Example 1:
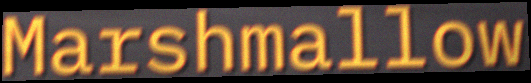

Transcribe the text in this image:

Marshmallow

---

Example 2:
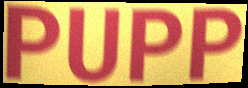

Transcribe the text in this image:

PUPP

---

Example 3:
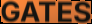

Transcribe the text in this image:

GATES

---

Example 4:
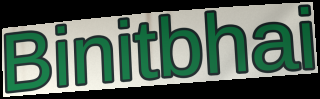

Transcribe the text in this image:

Binitbhai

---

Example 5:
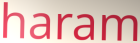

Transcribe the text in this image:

haram